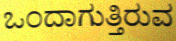
ಒಂದಾಗುತ್ತಿರುವ